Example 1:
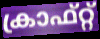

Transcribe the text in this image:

ക്രാഫ്റ്റ്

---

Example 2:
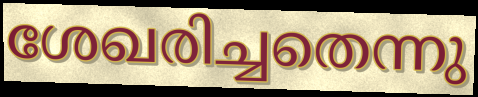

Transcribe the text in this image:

ശേഖരിച്ചതെന്നു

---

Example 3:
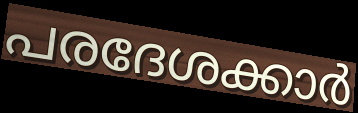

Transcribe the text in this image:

പരദേശക്കാർ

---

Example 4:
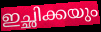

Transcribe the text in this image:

ഇച്ഛിക്കയും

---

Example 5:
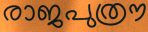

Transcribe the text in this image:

രാജപുത്രൗ